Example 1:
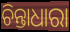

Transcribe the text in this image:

ଚିନ୍ତାଧାରା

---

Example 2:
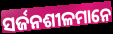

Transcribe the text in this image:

ସର୍ଜନଶୀଳମାନେ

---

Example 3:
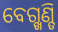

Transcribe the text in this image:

ବେଗ୍ଖଣ୍ଡି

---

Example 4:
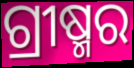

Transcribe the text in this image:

ଗ୍ରୀଷ୍ମର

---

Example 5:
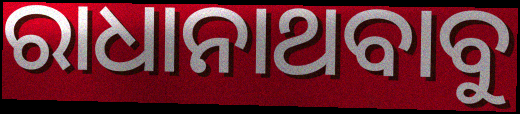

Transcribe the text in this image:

ରାଧାନାଥବାବୁ